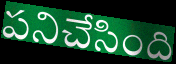
పనిచేసింది